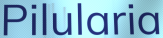
Pilularia